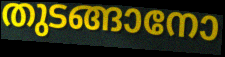
തുടങ്ങാനോ